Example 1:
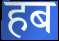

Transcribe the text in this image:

हब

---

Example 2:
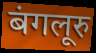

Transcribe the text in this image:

बंगलूरु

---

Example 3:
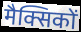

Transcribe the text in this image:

मैक्सिकों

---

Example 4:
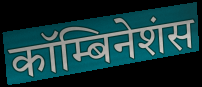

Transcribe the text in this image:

कॉम्बिनेशंस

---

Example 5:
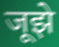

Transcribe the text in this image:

जूझे